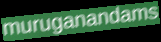
muruganandams